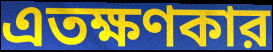
এতক্ষণকার